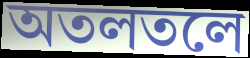
অতলতলে